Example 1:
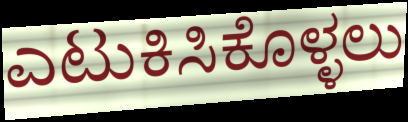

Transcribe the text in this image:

ಎಟುಕಿಸಿಕೊಳ್ಳಲು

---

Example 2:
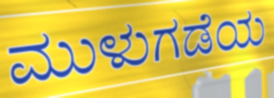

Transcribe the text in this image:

ಮುಳುಗಡೆಯ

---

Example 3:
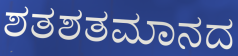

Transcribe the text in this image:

ಶತಶತಮಾನದ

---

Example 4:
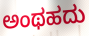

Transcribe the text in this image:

ಅಂಥಹದು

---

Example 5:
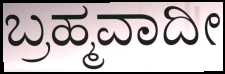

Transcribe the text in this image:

ಬ್ರಹ್ಮವಾದೀ